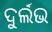
ଦୁର୍ଲଭ